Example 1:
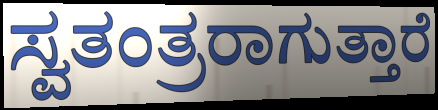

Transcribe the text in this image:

ಸ್ವತಂತ್ರರಾಗುತ್ತಾರೆ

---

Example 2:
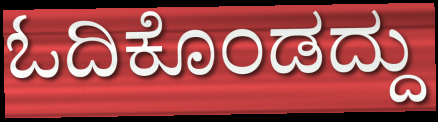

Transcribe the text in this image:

ಓದಿಕೊಂಡದ್ದು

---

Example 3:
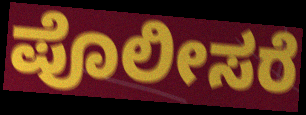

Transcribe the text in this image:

ಪೊಲೀಸರೆ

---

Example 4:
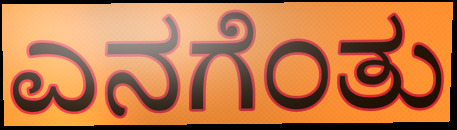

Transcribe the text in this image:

ಎನಗೆಂತು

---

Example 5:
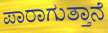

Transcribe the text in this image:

ಪಾರಾಗುತ್ತಾನೆ